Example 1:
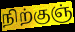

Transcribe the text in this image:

நிற்குஞ்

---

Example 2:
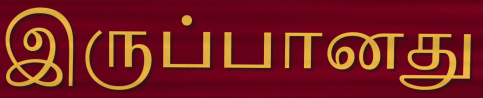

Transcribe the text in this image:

இருப்பானது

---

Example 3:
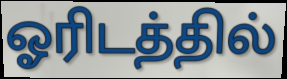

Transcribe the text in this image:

ஓரிடத்தில்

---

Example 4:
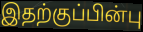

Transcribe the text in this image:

இதற்குப்பின்பு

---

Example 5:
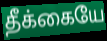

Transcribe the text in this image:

தீக்கையே